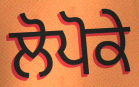
ਲੋਪੋਕੇ